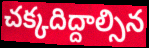
చక్కదిద్దాల్సిన